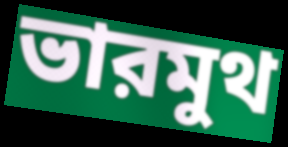
ভারমুথ